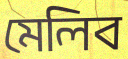
মেলিব